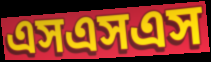
এসএসএস